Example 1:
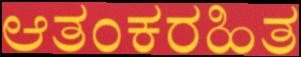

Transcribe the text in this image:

ಆತಂಕರಹಿತ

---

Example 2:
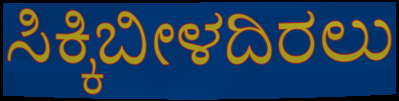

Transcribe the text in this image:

ಸಿಕ್ಕಿಬೀಳದಿರಲು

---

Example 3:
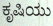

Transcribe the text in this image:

ಕೃಷಿಯು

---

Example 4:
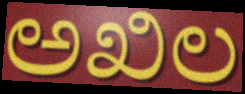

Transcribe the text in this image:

ಅಖಿಲ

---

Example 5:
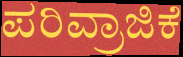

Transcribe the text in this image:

ಪರಿವ್ರಾಜಿಕೆ